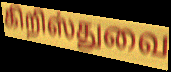
கிறிஸ்துவை